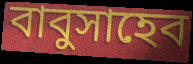
বাবুসাহেব